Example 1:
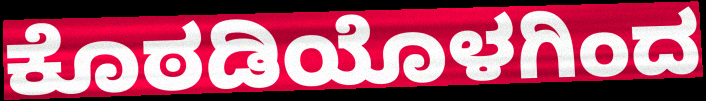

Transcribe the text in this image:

ಕೊಠಡಿಯೊಳಗಿಂದ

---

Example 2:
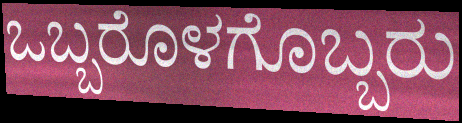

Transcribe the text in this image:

ಒಬ್ಬರೊಳಗೊಬ್ಬರು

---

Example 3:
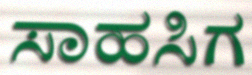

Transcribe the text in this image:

ಸಾಹಸಿಗ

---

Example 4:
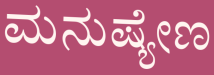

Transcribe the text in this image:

ಮನುಷ್ಯೇಣ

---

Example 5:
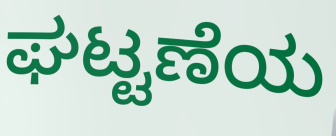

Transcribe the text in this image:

ಘಟ್ಟಣೆಯ